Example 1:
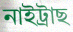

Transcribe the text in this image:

নাইট্ৰাছ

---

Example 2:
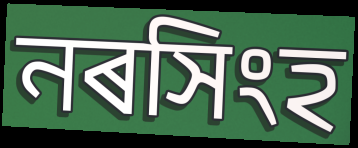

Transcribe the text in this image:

নৰসিংহ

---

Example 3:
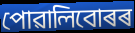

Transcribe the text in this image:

পোৱালিবোৰৰ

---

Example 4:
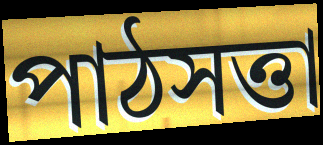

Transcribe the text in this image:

পাঠসত্তা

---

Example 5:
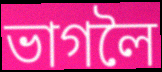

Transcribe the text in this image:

ভাগলৈ